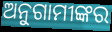
ଅନୁଗାମୀଙ୍କର